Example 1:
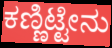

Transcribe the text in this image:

ಕಣ್ಣಿಟ್ಟೇನು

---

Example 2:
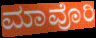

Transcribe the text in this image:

ಮಾವೊರಿ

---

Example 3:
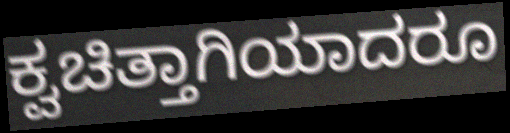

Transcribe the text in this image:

ಕ್ವಚಿತ್ತಾಗಿಯಾದರೂ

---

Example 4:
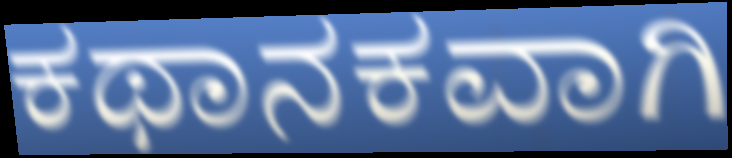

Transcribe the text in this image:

ಕಥಾನಕವಾಗಿ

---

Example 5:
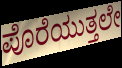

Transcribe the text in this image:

ಪೊರೆಯುತ್ತಲೇ